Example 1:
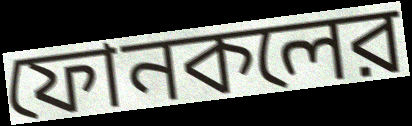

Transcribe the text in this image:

ফোনকলের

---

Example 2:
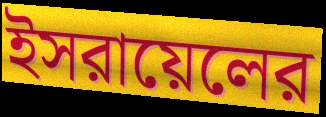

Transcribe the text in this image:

ইসরায়েলের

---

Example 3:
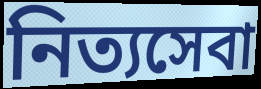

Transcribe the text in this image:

নিত্যসেবা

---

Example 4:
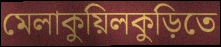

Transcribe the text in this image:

মেলাকুয়িলকুড়িতে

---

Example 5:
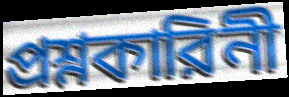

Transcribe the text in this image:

প্রশ্নকারিনী